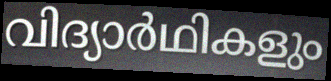
വിദ്യാർഥികളും